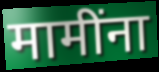
मामींना